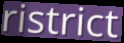
ristrict